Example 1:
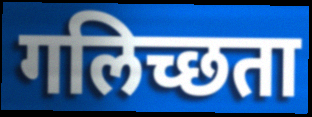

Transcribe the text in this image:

गलिच्छता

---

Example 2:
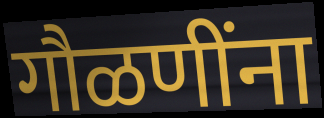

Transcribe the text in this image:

गौळणींना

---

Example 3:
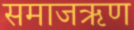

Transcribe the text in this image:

समाजऋण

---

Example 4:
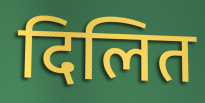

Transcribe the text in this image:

दिलित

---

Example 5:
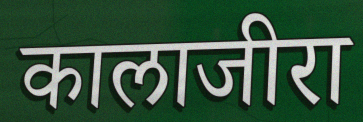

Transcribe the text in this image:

कालाजीरा